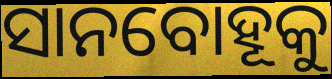
ସାନବୋହୂକୁ